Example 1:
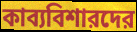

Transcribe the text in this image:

কাব্যবিশারদের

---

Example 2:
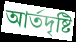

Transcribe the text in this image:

আর্তদৃষ্টি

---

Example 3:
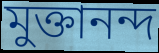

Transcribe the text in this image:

মুক্তানন্দ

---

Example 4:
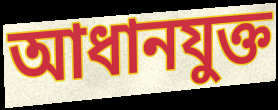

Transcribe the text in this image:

আধানযুক্ত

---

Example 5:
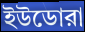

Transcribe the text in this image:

ইউডোরা